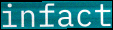
infact